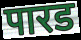
पारड